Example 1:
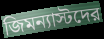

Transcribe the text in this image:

জিমন্যাস্টদের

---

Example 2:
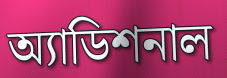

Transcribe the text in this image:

অ্যাডিশনাল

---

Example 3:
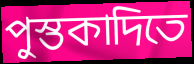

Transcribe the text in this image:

পুস্তকাদিতে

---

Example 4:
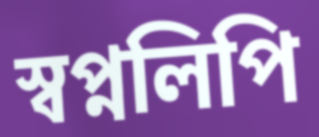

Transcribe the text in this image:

স্বপ্নলিপি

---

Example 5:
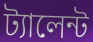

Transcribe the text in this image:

ট্যালেন্ট